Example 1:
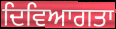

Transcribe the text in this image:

ਦਿਵਿਆਗਤਾ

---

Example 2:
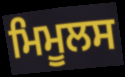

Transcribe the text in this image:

ਮਿਮੂਲਸ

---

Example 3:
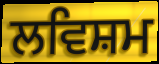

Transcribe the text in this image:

ਲਵਿਸ਼ਮ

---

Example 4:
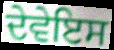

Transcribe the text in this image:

ਦੇਵੇਇਸ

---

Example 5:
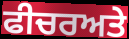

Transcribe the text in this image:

ਫੀਚਰਅਤੇ